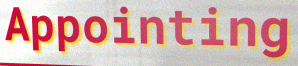
Appointing